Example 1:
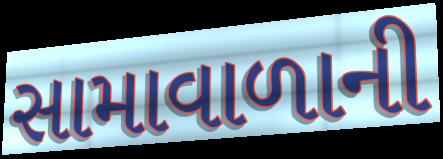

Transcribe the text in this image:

સામાવાળાની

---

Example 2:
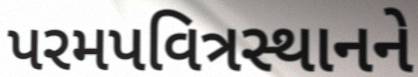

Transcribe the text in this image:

પરમપવિત્રસ્થાનને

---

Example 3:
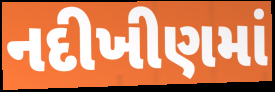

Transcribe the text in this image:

નદીખીણમાં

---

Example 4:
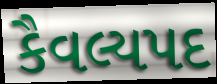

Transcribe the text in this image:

કૈવલ્યપદ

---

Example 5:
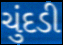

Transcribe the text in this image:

ચુંદડી